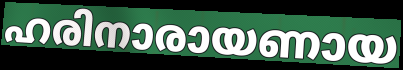
ഹരിനാരായണായ